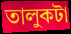
তালুকটা